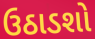
ઉઠાડશો